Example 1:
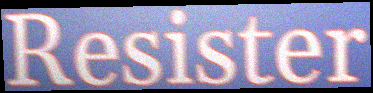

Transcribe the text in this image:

Resister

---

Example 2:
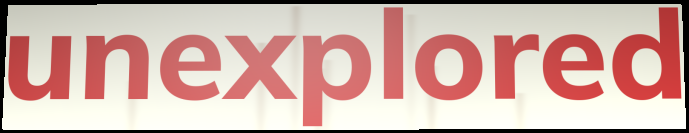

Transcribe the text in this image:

unexplored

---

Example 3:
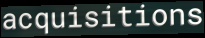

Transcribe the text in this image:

acquisitions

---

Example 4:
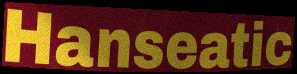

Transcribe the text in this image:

Hanseatic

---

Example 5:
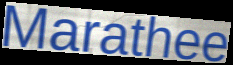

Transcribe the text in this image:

Marathee